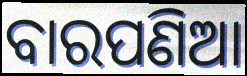
ବାରପଣିଆ